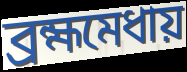
ব্রহ্মমেধায়